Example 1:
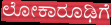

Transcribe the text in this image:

ಲೋಕಾರೂಢಿಗೆ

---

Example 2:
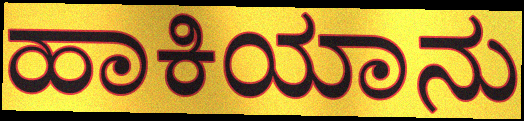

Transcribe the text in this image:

ಹಾಕಿಯಾನು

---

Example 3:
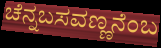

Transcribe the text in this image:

ಚೆನ್ನಬಸವಣ್ಣನೆಂಬ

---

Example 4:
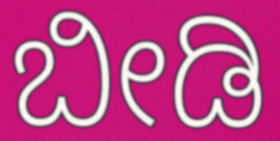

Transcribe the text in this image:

ಬೀಡಿ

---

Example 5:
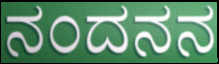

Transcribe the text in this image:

ನಂದನನ